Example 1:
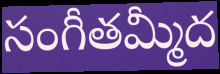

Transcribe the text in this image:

సంగీతమ్మీద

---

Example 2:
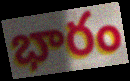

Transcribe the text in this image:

భారం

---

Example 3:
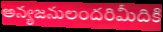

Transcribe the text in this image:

అన్యజనులందరిమీదికి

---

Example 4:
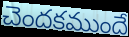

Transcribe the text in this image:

చెందకముందే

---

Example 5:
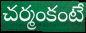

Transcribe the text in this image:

చర్మంకంటే